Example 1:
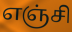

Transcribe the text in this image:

எஞ்சி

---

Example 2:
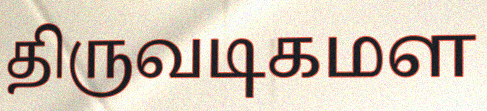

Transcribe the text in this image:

திருவடிகமள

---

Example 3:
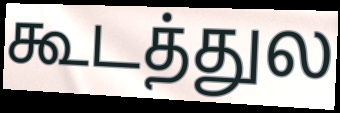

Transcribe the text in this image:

கூடத்துல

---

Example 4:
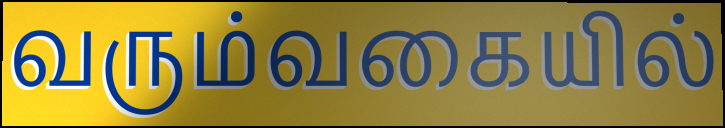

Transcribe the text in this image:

வரும்வகையில்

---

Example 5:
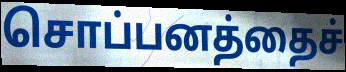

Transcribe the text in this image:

சொப்பனத்தைச்